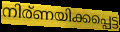
നിര്ണയിക്കപ്പെട്ട